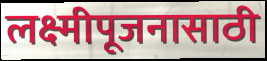
लक्ष्मीपूजनासाठी